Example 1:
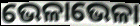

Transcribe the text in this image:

ଭେଳାଭେଳା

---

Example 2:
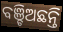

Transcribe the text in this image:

ବଞ୍ଚିଅଛନ୍ତି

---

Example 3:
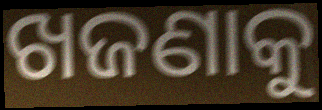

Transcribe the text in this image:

ଖଜଣାକୁ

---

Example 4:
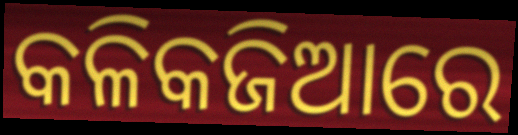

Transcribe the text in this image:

କଳିକଜିଆରେ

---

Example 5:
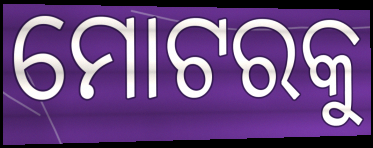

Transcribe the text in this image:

ମୋଟରକୁ